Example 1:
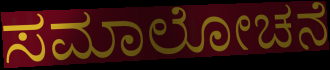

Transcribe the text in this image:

ಸಮಾಲೋಚನೆ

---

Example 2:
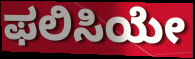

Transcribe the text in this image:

ಫಲಿಸಿಯೇ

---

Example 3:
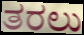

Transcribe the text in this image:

ತರಲು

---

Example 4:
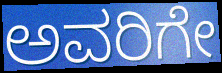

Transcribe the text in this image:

ಅವರಿಗೇ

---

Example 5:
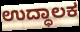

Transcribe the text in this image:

ಉದ್ಧಾಲಕ